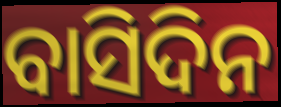
ବାସିଦିନ